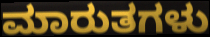
ಮಾರುತಗಳು